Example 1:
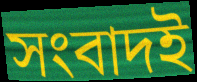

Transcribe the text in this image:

সংবাদই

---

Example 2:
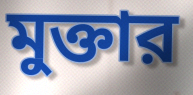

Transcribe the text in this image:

মুক্তার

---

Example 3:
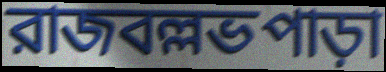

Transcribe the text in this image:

রাজবল্লভপাড়া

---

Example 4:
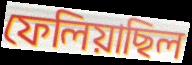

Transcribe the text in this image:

ফেলিয়াছিল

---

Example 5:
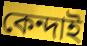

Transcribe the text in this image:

কেন্দাই